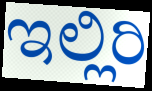
ಇಲ್ಲಿರಿ